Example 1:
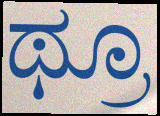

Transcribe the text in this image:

ಥ್ರೂ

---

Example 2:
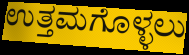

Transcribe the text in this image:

ಉತ್ತಮಗೊಳ್ಳಲು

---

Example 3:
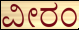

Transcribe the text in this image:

ವೀರಂ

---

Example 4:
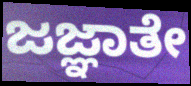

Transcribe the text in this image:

ಜಜ್ಞಾತೇ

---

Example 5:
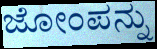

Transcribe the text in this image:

ಜೋಂಪನ್ನು